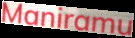
Maniramu